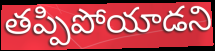
తప్పిపోయాడని